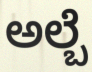
ಅಲ್ಬೆ